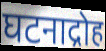
घटनाद्रोह